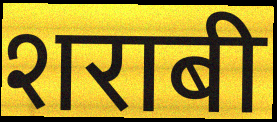
शराबी